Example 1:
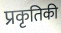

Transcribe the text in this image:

प्रकृतिकी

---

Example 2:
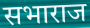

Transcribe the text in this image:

सभाराज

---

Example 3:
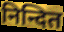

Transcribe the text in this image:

निन्दित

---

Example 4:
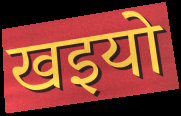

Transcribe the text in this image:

खइयो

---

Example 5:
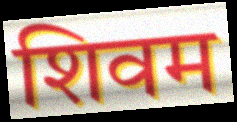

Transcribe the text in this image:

शिवम